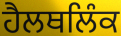
ਹੈਲਥਲਿੰਕ